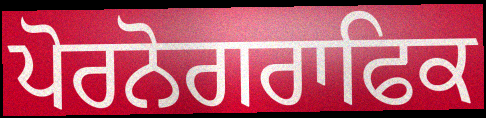
ਪੋਰਨੋਗਰਾਫਿਕ